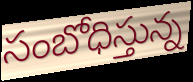
సంబోధిస్తున్న